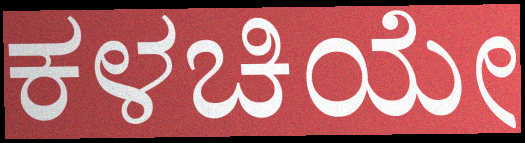
ಕಳಚಿಯೇ